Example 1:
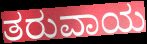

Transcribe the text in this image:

ತರುವಾಯ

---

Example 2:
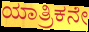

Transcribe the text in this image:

ಯಾತ್ರಿಕನೇ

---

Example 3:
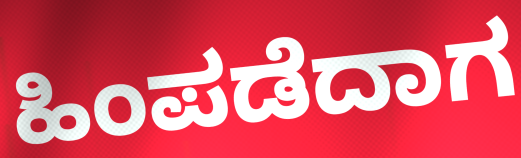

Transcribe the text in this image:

ಹಿಂಪಡೆದಾಗ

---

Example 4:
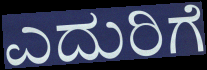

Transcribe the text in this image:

ಎದುರಿಗೆ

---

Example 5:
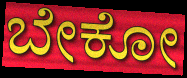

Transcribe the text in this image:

ಬೇಕೋ